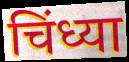
चिंध्या